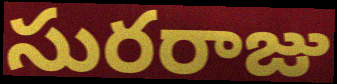
సురరాజు